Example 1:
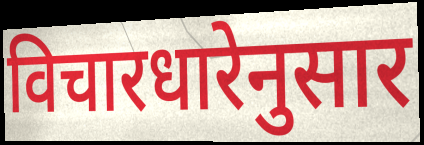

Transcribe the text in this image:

विचारधारेनुसार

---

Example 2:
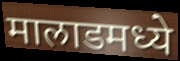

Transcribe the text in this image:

मालाडमध्ये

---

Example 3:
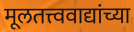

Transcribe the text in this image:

मूलतत्त्ववाद्यांच्या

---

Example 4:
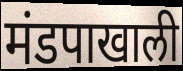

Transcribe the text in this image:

मंडपाखाली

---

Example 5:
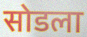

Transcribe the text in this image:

सोडला